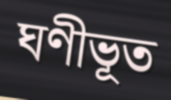
ঘণীভূত